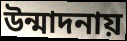
উন্মাদনায়